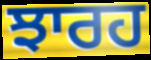
ਝਾਰਹ